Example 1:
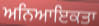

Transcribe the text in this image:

ਅਨਿਆਇਕਤਾ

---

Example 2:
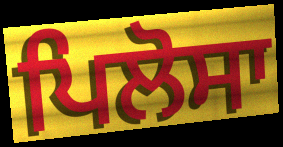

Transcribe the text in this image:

ਪਿਲੋਸਾ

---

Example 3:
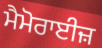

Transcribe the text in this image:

ਮੈਮੋਰਾਈਜ਼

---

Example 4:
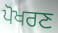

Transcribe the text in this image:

ਪੋਖਰਣ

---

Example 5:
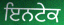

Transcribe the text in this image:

ਇਨਟੇਕ